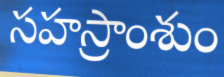
సహస్రాంశుం